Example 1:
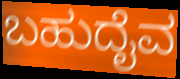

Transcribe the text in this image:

ಬಹುದೈವ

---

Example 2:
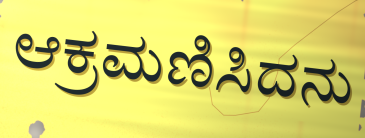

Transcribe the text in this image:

ಆಕ್ರಮಣಿಸಿದನು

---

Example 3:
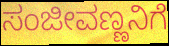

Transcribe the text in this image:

ಸಂಜೀವಣ್ಣನಿಗೆ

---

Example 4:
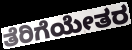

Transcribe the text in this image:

ತೆರಿಗೆಯೇತರ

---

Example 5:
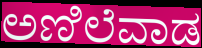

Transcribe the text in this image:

ಅಣಿಲೆವಾಡ